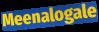
Meenalogale